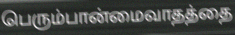
பெரும்பான்மைவாதத்தை